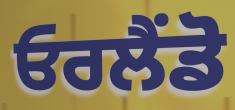
ਓਰਲੈਂਡੋ